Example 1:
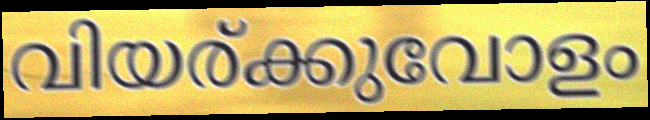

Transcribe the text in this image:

വിയര്ക്കുവോളം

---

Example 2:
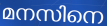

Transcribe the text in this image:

മനസിനെ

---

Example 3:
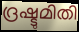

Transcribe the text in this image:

ദ്രഷ്ടുമിതി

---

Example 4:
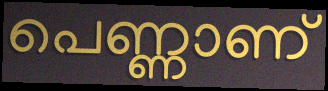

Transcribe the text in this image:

പെണ്ണാണ്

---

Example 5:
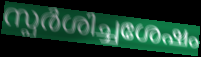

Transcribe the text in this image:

സ്പർശിച്ചശേഷം